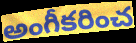
అంగీకరించ